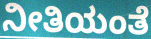
ನೀತಿಯಂತೆ